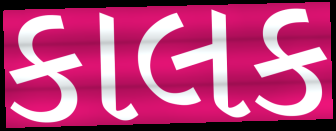
કાલક